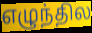
எழுந்தில